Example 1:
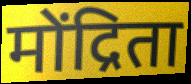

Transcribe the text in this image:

मोंद्रिता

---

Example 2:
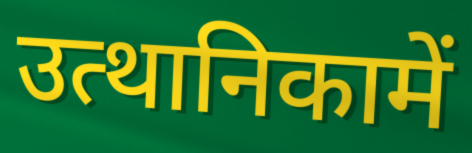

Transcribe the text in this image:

उत्थानिकामें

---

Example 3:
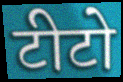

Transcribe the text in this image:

टीटो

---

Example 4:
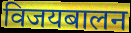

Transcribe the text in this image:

विजयबालन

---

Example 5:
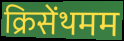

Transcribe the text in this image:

क्रिसेंथमम